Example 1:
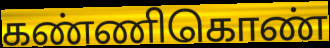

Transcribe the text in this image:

கண்ணிகொண்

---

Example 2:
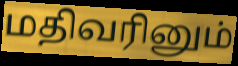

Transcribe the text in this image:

மதிவரினும்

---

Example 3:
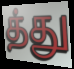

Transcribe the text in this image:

த்து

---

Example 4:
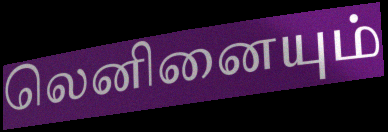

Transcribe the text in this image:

லெனினையும்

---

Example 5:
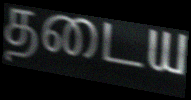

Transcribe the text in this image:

தடைய